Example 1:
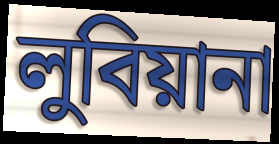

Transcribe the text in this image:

লুবিয়ানা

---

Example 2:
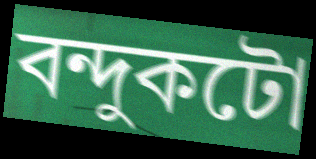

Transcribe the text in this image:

বন্দুকটো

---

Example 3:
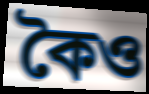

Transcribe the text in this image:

কৈও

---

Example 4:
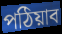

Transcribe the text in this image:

পঠিয়াব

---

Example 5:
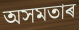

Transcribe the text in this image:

অসমতাৰ